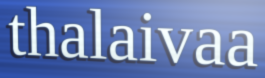
thalaivaa